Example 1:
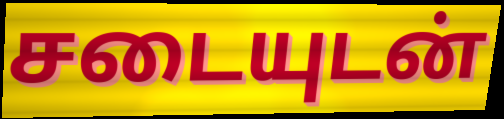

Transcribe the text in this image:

சடையுடன்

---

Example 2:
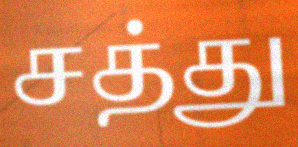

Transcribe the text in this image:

சத்து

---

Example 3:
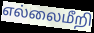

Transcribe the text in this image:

எல்லைமீறி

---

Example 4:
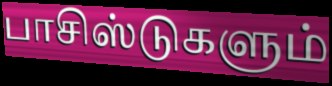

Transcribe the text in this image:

பாசிஸ்டுகளும்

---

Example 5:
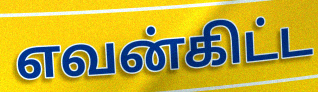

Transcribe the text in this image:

எவன்கிட்ட